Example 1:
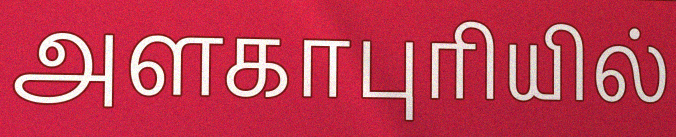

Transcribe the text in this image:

அளகாபுரியில்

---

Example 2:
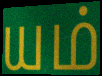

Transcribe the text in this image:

யம்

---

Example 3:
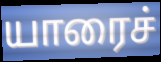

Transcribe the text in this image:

யாரைச்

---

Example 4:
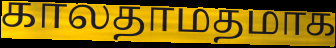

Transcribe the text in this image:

காலதாமதமாக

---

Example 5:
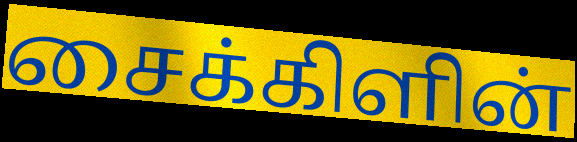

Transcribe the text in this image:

சைக்கிளின்